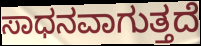
ಸಾಧನವಾಗುತ್ತದೆ